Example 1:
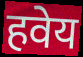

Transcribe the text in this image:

हवेय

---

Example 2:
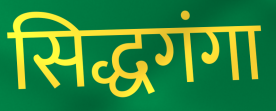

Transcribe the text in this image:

सिद्धगंगा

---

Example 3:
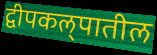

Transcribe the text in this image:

द्वीपकल्पातील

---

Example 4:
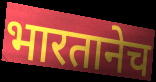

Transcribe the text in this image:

भारतानेच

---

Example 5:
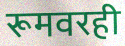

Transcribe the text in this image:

रूमवरही